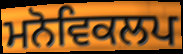
ਮਨੋਵਿਕਲਪ